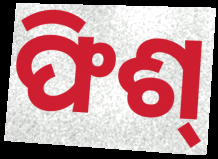
ଫିଶ୍